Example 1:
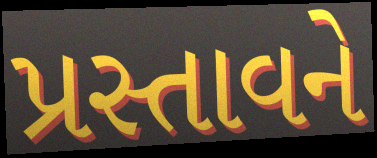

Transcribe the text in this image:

પ્રસ્તાવને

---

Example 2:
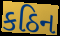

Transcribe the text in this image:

કઠિન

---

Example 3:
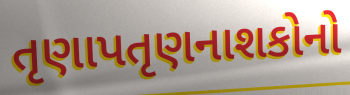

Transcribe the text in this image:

તૃણાપતૃણનાશકોનો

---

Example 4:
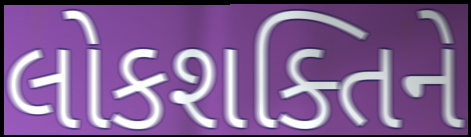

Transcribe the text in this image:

લોકશક્તિને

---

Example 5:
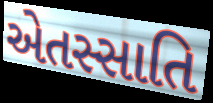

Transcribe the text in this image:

એતસ્સાતિ